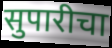
सुपारीचा